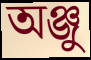
অঞ্জু